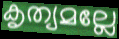
കൃത്യമല്ലേ